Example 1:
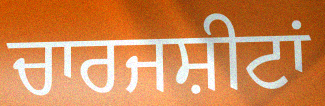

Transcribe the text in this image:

ਚਾਰਜਸ਼ੀਟਾਂ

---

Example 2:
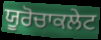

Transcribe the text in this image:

ਯੂਰੋਚਾਕਲੇਟ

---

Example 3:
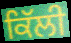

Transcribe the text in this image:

ਕਿੱਲੀ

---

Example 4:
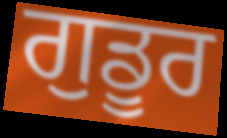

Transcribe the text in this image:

ਗੁਡੂਰ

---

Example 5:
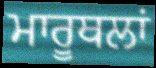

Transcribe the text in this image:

ਮਾਰੂਥਲਾਂ